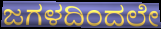
ಜಗಳದಿಂದಲೇ